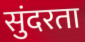
सुंदरता